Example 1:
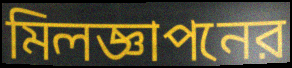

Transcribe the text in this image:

মিলজ্ঞাপনের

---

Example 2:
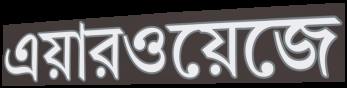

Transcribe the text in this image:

এয়ারওয়েজে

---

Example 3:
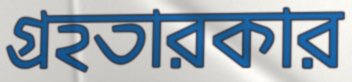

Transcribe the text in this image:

গ্রহতারকার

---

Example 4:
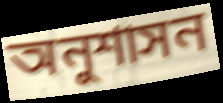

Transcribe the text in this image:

অনুশাসন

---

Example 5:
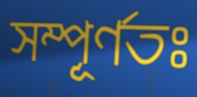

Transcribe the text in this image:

সম্পূর্ণতঃ